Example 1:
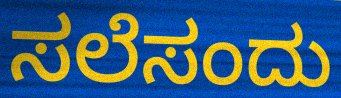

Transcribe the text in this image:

ಸಲೆಸಂದು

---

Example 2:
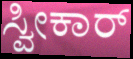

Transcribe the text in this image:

ಸ್ವೀಕಾರ್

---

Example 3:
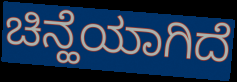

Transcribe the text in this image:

ಚಿನ್ಹೆಯಾಗಿದೆ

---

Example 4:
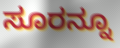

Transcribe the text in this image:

ಸೂರನ್ನೂ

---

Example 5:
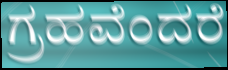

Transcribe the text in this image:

ಗ್ರಹವೆಂದರೆ